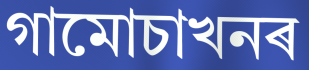
গামোচাখনৰ